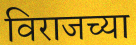
विराजच्या